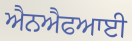
ਐਨਐਫਆਈ